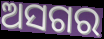
ଅସଗର